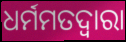
ଧର୍ମମତଦ୍ୱାରା